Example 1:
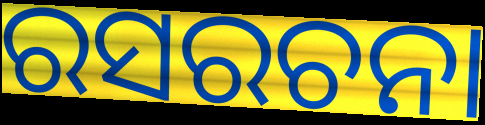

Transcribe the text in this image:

ରସରଚନା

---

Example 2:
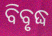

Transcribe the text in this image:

ବିବୃଦ୍ଧ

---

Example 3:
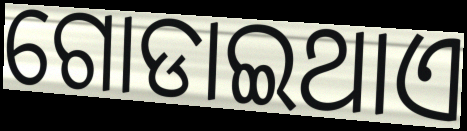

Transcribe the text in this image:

ଗୋଡାଇଥାଏ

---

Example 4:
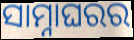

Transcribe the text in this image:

ସାମ୍ନାଘରର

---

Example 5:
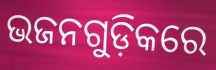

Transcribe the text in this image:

ଭଜନଗୁଡ଼ିକରେ